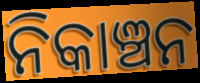
ନିକାଞ୍ଚନ